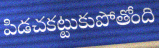
పిడచకట్టుకుపోతోంది